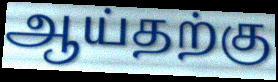
ஆய்தற்கு